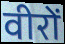
वीरों